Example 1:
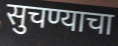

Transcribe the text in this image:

सुचण्याचा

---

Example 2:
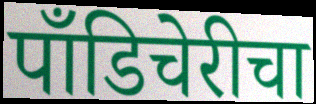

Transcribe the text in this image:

पाँडिचेरीचा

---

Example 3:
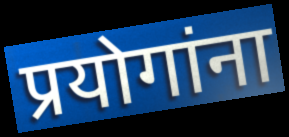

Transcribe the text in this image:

प्रयोगांना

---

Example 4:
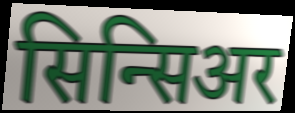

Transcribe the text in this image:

सिन्सिअर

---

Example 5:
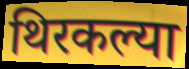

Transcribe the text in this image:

थिरकल्या